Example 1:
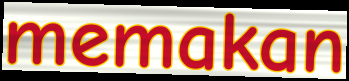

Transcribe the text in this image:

memakan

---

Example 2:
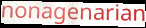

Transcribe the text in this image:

nonagenarian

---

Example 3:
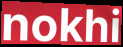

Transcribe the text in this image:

nokhi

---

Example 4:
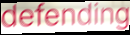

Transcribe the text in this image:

defending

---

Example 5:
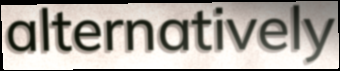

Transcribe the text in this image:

alternatively